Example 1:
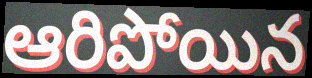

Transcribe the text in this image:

ఆరిపోయిన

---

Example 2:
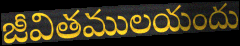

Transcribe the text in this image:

జీవితములయందు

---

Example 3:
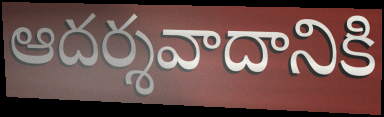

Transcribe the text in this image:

ఆదర్శవాదానికి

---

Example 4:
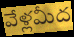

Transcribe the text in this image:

వేళ్లమీద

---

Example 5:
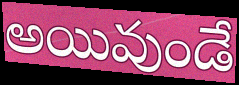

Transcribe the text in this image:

అయివుండే